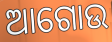
ଆଗୋଉ